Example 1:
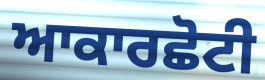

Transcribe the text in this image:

ਆਕਾਰਛੋਟੀ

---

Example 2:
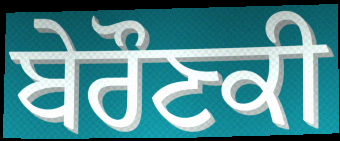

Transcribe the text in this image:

ਬੇਰੌਣਕੀ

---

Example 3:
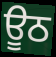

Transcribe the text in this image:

ਊਠ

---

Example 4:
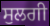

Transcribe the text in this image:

ਸੁਲਗੀ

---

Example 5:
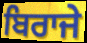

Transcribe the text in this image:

ਬਿਰਾਜੇ